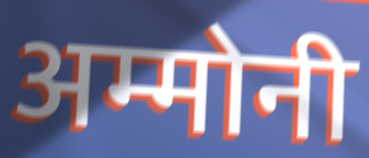
अम्मोनी